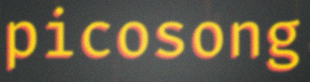
picosong